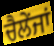
ਚੈਲੇਂਜਾਂ